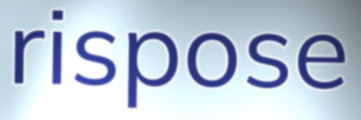
rispose